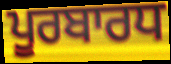
ਪੂਰਬਾਰਧ